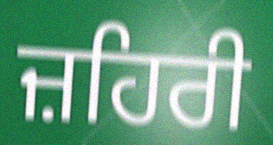
ਜ਼ਹਿਰੀ